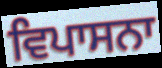
ਵਿਪਾਸਨਾ